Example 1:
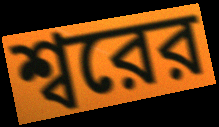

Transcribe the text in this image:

শ্বরের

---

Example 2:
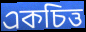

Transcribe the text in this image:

একচিত্ত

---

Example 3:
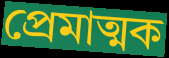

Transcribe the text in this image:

প্রেমাত্মক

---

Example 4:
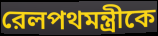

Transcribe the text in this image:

রেলপথমন্ত্রীকে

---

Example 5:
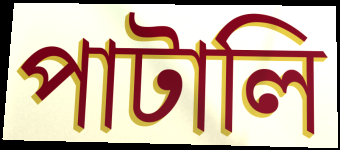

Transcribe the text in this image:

পাটালি